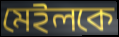
মেইলকে